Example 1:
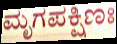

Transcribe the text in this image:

ಮೃಗಪಕ್ಷಿಣಃ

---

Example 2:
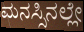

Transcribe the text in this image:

ಮನಸ್ಸಿನಲ್ಲೇ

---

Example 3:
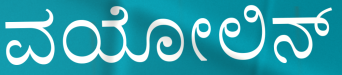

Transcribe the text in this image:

ವಯೋಲಿನ್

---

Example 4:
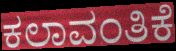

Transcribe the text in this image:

ಕಲಾವಂತಿಕೆ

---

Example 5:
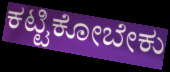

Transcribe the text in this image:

ಕಟ್ಟಿಕೋಬೇಕು